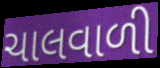
ચાલવાળી